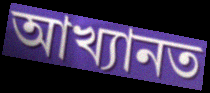
আখ্যানত